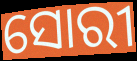
ସୋରୀ